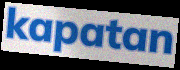
kapatan